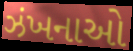
ઝંખનાઓ